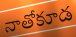
నాతోకూడ